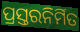
ପ୍ରସ୍ତରନିର୍ମିତ